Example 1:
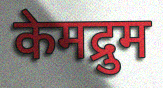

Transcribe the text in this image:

केमद्रुम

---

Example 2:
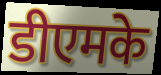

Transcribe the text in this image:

डीएमके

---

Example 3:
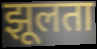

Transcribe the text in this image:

झूलता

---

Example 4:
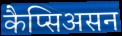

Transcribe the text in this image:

कैप्सिअसन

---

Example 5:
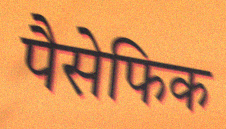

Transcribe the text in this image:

पैसेफिक